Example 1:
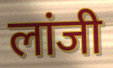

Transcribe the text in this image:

लांजी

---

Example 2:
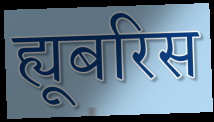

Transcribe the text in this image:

ह्यूबरिस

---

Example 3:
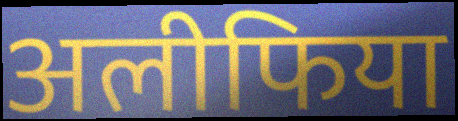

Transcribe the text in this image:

अलीफिया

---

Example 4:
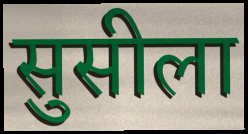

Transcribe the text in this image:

सुसीला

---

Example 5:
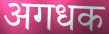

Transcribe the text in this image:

अगधक